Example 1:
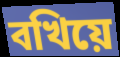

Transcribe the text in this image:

বখিয়ে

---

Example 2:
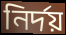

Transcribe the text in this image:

নির্দয়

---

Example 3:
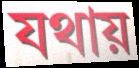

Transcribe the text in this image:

যথায়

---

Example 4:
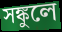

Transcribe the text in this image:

সঙ্কুলে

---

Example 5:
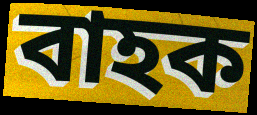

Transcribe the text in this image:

বাহক